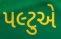
પલ્ટુએ